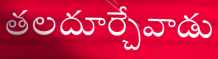
తలదూర్చేవాడు